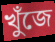
খুঁজে